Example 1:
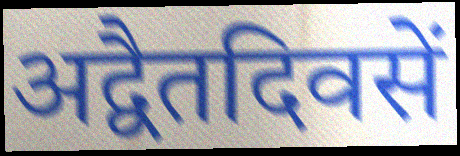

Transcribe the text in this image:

अद्वैतदिवसें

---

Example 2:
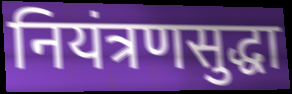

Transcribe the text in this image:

नियंत्रणसुद्धा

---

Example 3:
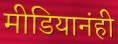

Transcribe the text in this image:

मीडियानंही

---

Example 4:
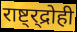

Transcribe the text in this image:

राष्ट्र्द्रोही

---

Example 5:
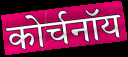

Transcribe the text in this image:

कोर्चनॉय